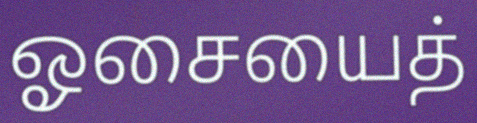
ஓசையைத்